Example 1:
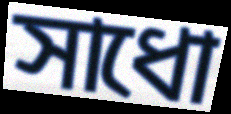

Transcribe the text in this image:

সাধো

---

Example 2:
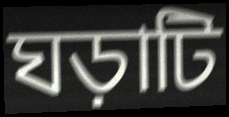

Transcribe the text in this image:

ঘড়াটি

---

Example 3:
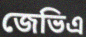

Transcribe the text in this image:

জেভিএ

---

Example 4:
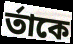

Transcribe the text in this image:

র্তাকে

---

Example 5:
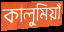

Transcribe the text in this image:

কালুমিয়াঁ